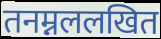
तनम्नललखित